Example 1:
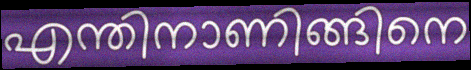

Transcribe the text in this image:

എന്തിനാണിങ്ങിനെ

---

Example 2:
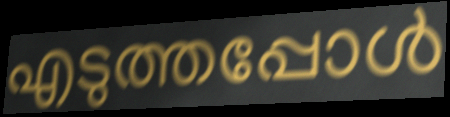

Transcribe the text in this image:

എടുത്തപ്പോൾ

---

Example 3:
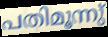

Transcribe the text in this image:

പതിമൂന്നു്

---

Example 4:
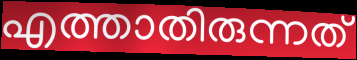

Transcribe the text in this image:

എത്താതിരുന്നത്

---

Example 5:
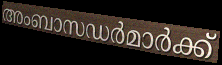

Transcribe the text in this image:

അംബാസഡർമാർക്ക്